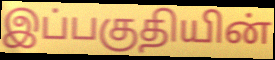
இப்பகுதியின்